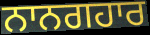
ਨਾਨਗਹਾਰ